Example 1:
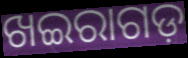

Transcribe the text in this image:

ଖଇରାଗଡ଼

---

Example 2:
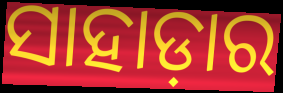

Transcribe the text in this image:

ସାହାଡ଼ାର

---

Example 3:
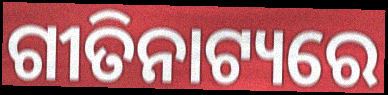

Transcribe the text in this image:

ଗୀତିନାଟ୍ୟରେ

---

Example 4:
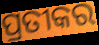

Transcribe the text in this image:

ପ୍ରତୀକର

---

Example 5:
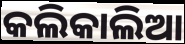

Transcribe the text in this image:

କଲିକାଲିଆ